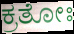
ಕ್ರತೋಃ